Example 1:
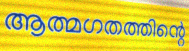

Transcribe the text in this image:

ആത്മഗതത്തിന്റെ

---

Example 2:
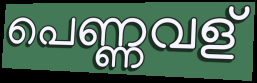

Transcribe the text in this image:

പെണ്ണവള്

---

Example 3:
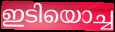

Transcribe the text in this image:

ഇടിയൊച്ച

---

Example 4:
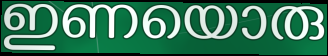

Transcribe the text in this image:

ഇണയൊരു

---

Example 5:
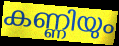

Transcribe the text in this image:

കണ്ണിയും